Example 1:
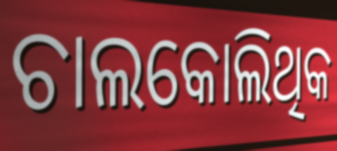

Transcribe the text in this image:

ଚାଲକୋଲିଥିକ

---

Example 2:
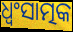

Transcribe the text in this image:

ଧ୍ଵଂସାତ୍ମକ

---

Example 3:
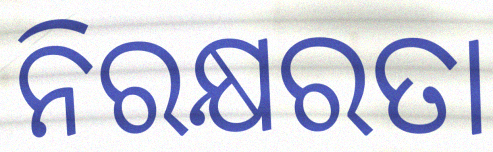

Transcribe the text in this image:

ନିରକ୍ଷରତା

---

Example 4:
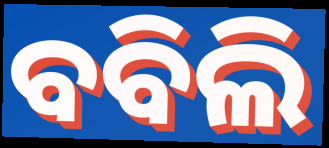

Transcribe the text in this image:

ବବିଲି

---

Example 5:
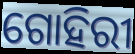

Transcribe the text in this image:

ଗୋହିରୀ